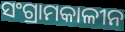
ସଂଗ୍ରାମକାଳୀନ